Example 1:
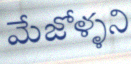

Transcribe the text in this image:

మేజోళ్ళని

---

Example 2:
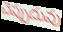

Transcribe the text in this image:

చెప్పుదువు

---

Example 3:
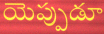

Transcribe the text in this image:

యెప్పుడూ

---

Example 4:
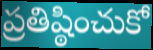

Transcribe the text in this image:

ప్రతిష్ఠించుకో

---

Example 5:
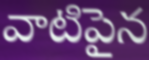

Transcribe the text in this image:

వాటిపైన